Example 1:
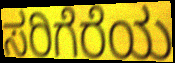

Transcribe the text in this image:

ಸರಿಗೆರೆಯ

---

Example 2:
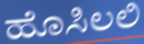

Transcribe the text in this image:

ಹೊಸಿಲಲಿ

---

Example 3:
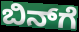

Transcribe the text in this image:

ಬಿನ್‌ಗೆ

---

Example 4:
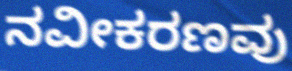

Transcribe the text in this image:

ನವೀಕರಣವು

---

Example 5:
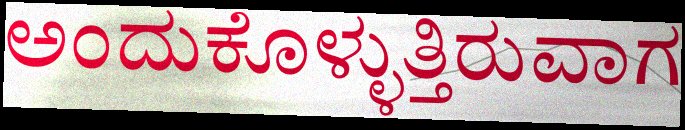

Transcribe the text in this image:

ಅಂದುಕೊಳ್ಳುತ್ತಿರುವಾಗ